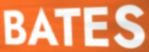
BATES